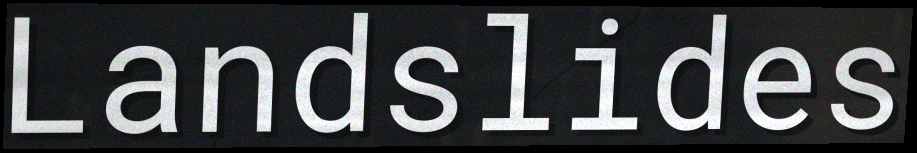
Landslides